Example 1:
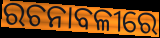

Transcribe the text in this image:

ରଚନାବଳୀରେ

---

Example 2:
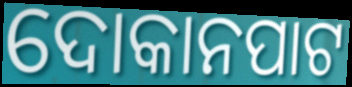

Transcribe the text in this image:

ଦୋକାନପାଟ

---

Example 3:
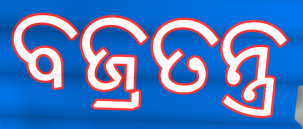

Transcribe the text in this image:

ବଜ୍ରତନ୍ତ୍ର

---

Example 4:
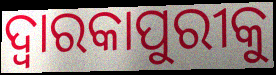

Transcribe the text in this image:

ଦ୍ୱାରକାପୁରୀକୁ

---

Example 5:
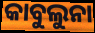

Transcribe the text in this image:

କାବୁଲୁନା